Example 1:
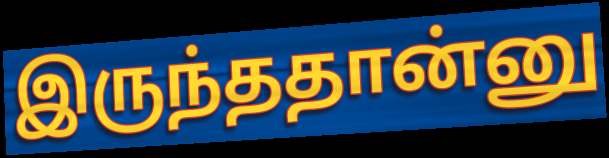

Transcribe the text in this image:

இருந்ததான்னு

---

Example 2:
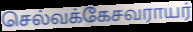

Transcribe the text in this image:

செல்வக்கேசவராயர்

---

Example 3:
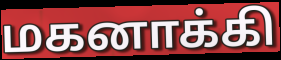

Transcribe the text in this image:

மகனாக்கி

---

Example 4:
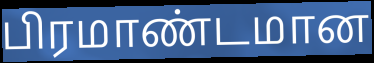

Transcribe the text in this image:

பிரமாண்டமான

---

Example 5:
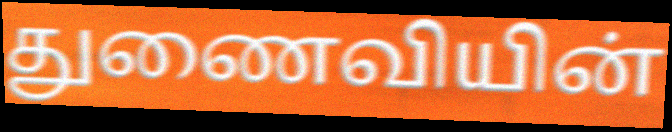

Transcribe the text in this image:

துணைவியின்